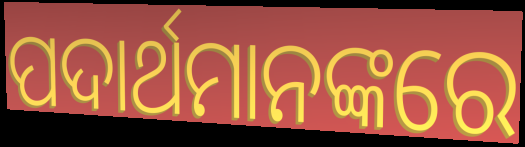
ପଦାର୍ଥମାନଙ୍କରେ